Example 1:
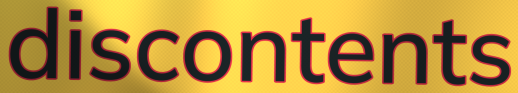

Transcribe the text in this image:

discontents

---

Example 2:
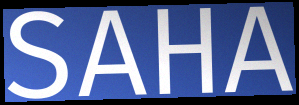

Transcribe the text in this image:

SAHA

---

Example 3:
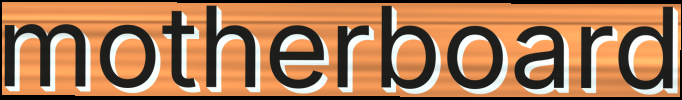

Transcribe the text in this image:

motherboard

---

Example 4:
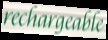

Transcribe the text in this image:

rechargeable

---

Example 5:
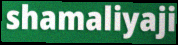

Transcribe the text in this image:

shamaliyaji